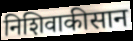
निशिवाकीसान